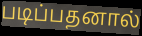
படிப்பதனால்